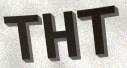
THT